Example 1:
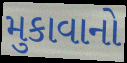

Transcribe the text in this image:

મુકાવાનો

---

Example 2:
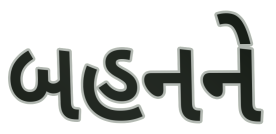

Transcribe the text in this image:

બહનને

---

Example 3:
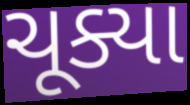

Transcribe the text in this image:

ચૂક્યા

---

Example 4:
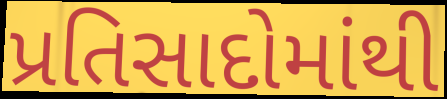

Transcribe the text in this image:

પ્રતિસાદોમાંથી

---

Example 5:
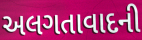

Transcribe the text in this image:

અલગતાવાદની